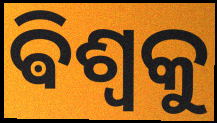
ଵିଶ୍ଵକୁ